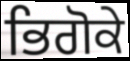
ਭਿਗੋਕੇ